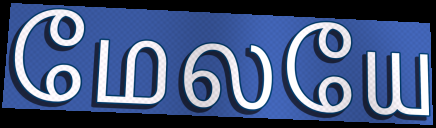
மேலயே